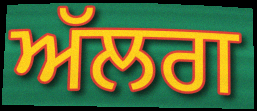
ਅੱਲਗ